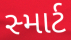
સ્માર્ટ